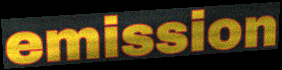
emission